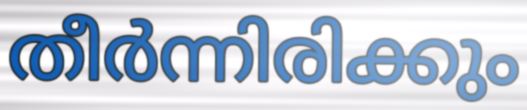
തീർന്നിരിക്കും